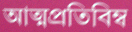
আত্মপ্রতিবিম্ব